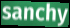
sanchy